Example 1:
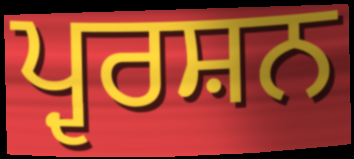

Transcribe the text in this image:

ਪ੍ਦਰਸ਼ਨ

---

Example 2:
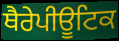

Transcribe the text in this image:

ਥੈਰੇਪੀਊਟਿਕ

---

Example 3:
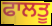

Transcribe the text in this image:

ਫਾਲਤੂ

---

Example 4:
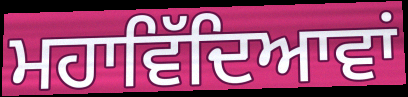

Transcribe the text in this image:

ਮਹਾਵਿੱਦਿਆਵਾਂ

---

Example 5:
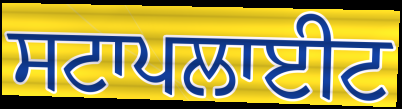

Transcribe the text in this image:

ਸਟਾਪਲਾਈਟ